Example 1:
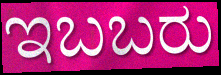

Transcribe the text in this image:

ಇಬಬರು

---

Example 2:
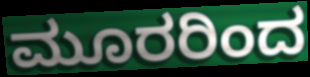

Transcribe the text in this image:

ಮೂರರಿಂದ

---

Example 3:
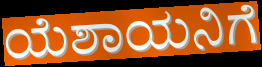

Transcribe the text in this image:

ಯೆಶಾಯನಿಗೆ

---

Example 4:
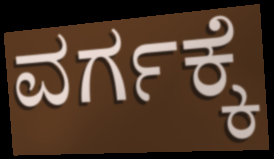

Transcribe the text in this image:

ವರ್ಗಕ್ಕೆ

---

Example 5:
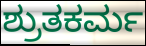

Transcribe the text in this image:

ಶ್ರುತಕರ್ಮ